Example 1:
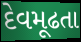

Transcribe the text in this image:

દેવમૂઢતા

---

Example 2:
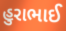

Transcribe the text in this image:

હુરાભાઈ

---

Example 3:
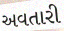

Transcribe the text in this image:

અવતારી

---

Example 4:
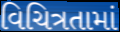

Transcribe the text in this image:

વિચિત્રતામાં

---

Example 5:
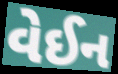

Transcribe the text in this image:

વેઈન